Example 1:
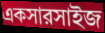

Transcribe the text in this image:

একসারসাইজ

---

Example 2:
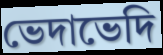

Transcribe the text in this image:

ভেদাভেদি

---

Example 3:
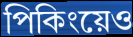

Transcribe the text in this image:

পিকিংয়েও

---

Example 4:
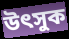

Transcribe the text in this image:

উৎসুক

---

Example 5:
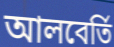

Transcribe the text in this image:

আলবের্তি